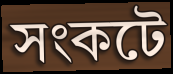
সংকটে